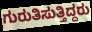
ಗುರುತಿಸುತ್ತಿದ್ದರು